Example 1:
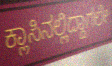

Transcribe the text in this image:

ಕ್ಲಾಸಿನಲ್ಲಿದ್ದಾಗಲೇ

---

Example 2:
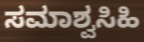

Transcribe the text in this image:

ಸಮಾಶ್ವಸಿಹಿ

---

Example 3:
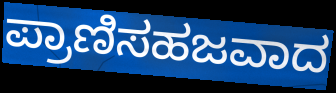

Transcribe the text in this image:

ಪ್ರಾಣಿಸಹಜವಾದ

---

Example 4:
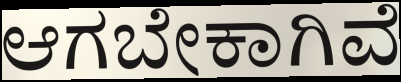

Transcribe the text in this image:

ಆಗಬೇಕಾಗಿವೆ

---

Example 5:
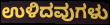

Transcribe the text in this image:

ಉಳಿದವುಗಳು